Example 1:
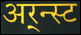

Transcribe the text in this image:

अर्न्स्ट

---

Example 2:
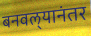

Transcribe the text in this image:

बनवल्यानंतर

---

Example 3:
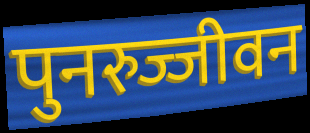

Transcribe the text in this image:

पुनरुज्‍जीवन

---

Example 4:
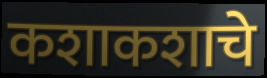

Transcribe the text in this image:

कशाकशाचे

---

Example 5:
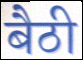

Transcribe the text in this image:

बैठी